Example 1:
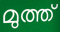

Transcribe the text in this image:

മുത്ത്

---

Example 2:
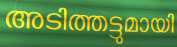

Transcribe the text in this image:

അടിത്തട്ടുമായി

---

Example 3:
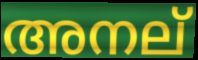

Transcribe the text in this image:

അനല്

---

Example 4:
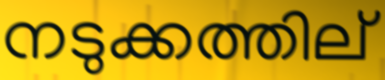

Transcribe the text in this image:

നടുക്കത്തില്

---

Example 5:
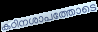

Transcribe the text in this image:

കഠിനശാപത്തോടെ